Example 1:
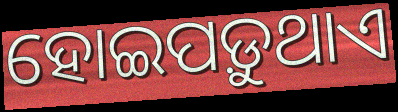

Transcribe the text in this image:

ହୋଇପଡ଼ୁଥାଏ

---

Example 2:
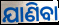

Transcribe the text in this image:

ଯାଣିବା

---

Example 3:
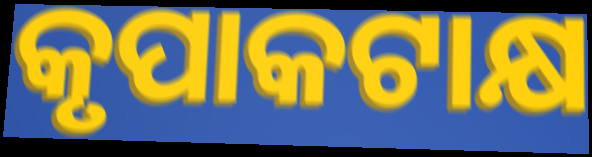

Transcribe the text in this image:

କୃପାକଟାକ୍ଷ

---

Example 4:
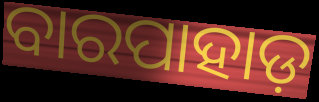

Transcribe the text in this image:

ବାରପାହାଡ଼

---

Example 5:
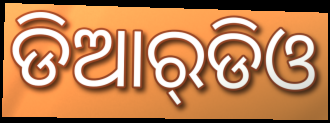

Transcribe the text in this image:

ଡିଆର୍‌ଡିଓ